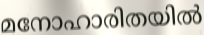
മനോഹാരിതയിൽ